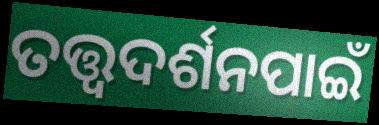
ତତ୍ତ୍ଵଦର୍ଶନପାଇଁ